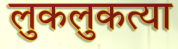
लुकलुकत्या